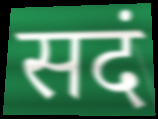
सदं